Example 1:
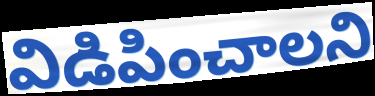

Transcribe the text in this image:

విడిపించాలని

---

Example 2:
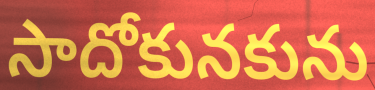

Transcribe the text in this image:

సాదోకునకును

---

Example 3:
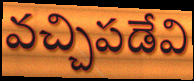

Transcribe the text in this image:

వచ్చిపడేవి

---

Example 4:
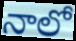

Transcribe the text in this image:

నాలో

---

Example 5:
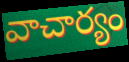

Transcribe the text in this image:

వాచార్యం